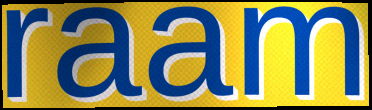
raam